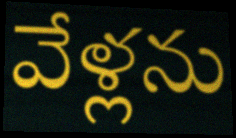
వేళ్లను